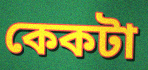
কেকটা